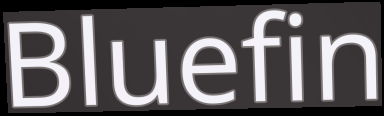
Bluefin